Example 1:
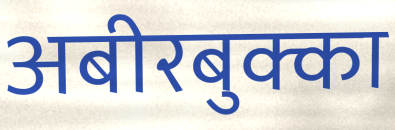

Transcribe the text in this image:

अबीरबुक्का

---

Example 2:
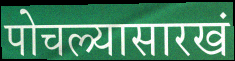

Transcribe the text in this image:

पोचल्यासारखं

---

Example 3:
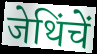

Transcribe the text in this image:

जेथिंचें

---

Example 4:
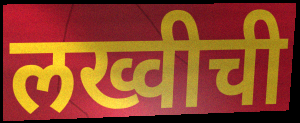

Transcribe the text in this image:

लख्वीची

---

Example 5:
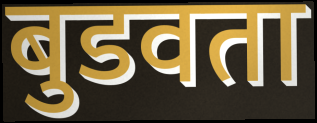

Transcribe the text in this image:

बुडवता